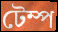
টেম্প